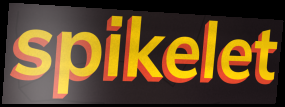
spikelet